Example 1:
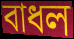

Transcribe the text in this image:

বাধল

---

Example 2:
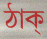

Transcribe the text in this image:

ঠাক্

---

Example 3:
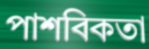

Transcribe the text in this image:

পাশবিকতা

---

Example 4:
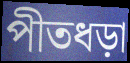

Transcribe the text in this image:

পীতধড়া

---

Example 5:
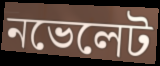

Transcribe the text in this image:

নভেলেট